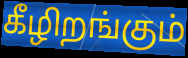
கீழிறங்கும்